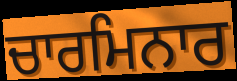
ਚਾਰਮਿਨਾਰ